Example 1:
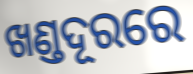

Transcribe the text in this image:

ଖଣ୍ଡଦୂରରେ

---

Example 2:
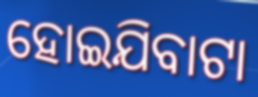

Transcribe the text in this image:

ହୋଇଯିବାଟା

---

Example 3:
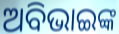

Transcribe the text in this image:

ଅବିଭାଇଙ୍କ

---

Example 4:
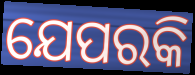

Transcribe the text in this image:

ଯେପରକି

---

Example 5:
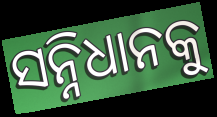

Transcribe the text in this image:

ସନ୍ନିଧାନକୁ